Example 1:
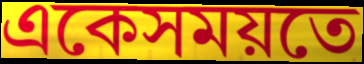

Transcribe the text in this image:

একেসময়তে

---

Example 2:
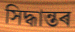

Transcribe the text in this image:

সিদ্ধান্তৰ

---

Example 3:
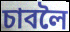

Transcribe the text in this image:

চাবলৈ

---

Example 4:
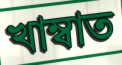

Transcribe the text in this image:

খাম্বাত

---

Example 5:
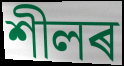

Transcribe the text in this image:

শীলৰ